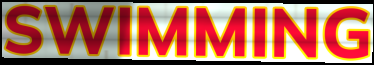
SWIMMING